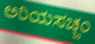
ಅರಿಯಸಚ್ಚಂ